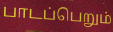
பாடப்பெறும்